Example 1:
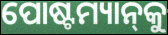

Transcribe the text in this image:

ପୋଷ୍ଟମ୍ୟାନ୍‌କୁ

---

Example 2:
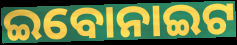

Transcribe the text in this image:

ଇବୋନାଇଟ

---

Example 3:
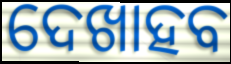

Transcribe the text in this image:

ଦେଖାହବ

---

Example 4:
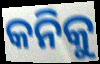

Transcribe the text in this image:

କନିକୁ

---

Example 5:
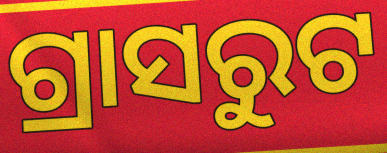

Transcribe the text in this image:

ଗ୍ରାସରୁଟ